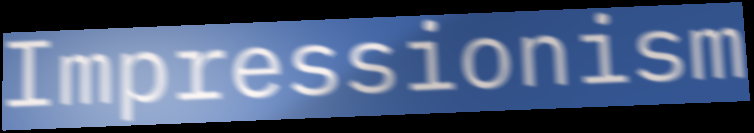
Impressionism